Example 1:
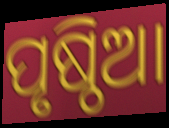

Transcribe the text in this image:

ପୃଷ୍ଠିଆ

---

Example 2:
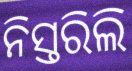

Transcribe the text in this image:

ନିସ୍ତରିଲି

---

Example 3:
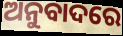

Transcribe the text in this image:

ଅନୁବାଦରେ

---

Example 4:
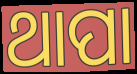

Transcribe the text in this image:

ଥାପା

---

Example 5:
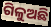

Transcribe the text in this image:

ଗିଳୁଅଛି